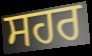
ਸਹਰ